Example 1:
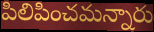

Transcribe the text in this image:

పిలిపించమన్నారు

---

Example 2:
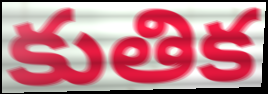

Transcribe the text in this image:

కుతిక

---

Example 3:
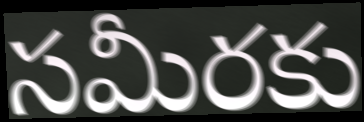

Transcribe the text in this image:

సమీరకు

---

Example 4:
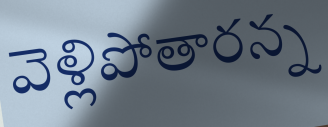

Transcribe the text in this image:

వెళ్లిపోతారన్న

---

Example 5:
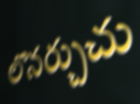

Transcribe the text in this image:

లొనర్చుచు